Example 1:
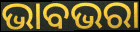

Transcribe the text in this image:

ଭାବଭରା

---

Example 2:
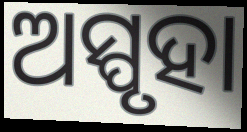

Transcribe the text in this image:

ଅସ୍ପୃହା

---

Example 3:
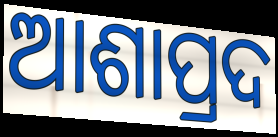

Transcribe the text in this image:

ଆଶାପ୍ରଦ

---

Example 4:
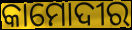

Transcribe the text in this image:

କାମୋଦୀର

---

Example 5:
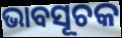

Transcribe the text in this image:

ଭାବସୂଚକ